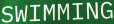
SWIMMING